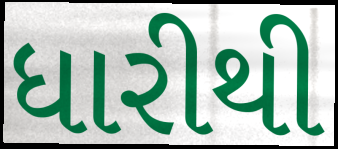
ધારીથી